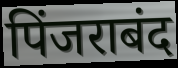
पिंजराबंद